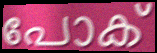
പോക്